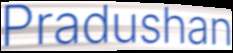
Pradushan